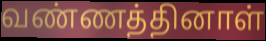
வண்ணத்தினாள்